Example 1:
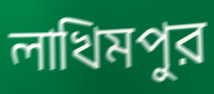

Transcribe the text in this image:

লাখিমপুর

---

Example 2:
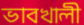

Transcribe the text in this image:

ভাবখালী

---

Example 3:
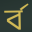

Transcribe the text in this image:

র্ব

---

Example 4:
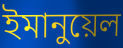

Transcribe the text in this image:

ইমানুয়েল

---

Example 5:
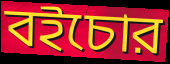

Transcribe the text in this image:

বইচোর